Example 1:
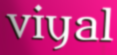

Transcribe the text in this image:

viyal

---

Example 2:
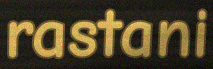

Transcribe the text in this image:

rastani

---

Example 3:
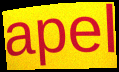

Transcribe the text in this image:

apel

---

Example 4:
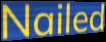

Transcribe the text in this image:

Nailed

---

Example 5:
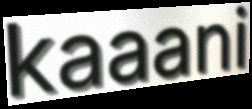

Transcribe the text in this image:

kaaani